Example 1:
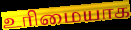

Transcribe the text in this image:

உரிமையாக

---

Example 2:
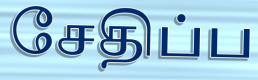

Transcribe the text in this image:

சேதிப்ப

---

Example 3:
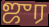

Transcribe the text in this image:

ஜுர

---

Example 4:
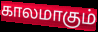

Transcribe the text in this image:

காலமாகும்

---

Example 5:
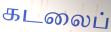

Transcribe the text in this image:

கடலைப்